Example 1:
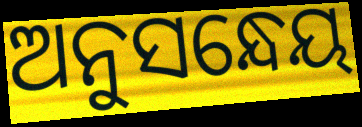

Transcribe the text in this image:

ଅନୁସନ୍ଧେୟ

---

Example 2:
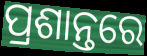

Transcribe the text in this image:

ପ୍ରଶାନ୍ତରେ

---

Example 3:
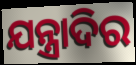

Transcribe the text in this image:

ଯନ୍ତ୍ରାଦିର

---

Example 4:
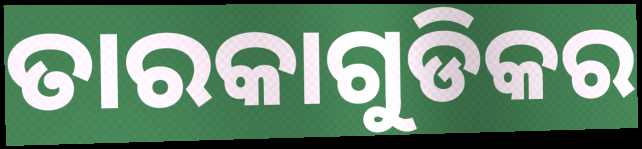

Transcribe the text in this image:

ତାରକାଗୁଡିକର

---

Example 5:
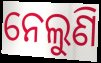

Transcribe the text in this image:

ନେଲୁଣି